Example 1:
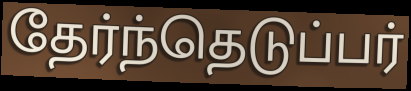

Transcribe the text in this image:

தேர்ந்தெடுப்பர்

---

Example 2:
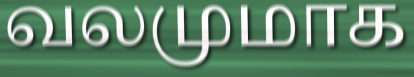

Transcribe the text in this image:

வலமுமாக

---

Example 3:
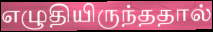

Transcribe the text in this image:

எழுதியிருந்ததால்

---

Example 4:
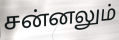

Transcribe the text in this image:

சன்னலும்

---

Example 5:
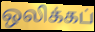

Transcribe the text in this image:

ஒலிக்கப்